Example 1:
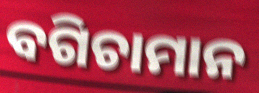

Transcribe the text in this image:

ବଗିଚାମାନ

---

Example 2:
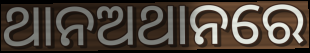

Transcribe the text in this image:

ଥାନଅଥାନରେ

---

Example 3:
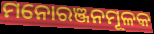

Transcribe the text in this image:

ମନୋରଞ୍ଜନମୂଳକ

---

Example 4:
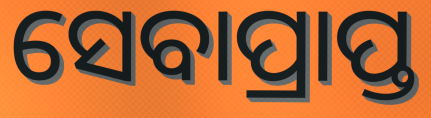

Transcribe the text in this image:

ସେବାପ୍ରାପ୍ତ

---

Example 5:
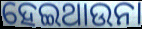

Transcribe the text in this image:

ହେଇଥାଉନା